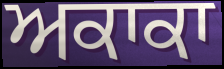
ਅਕਾਕਾ